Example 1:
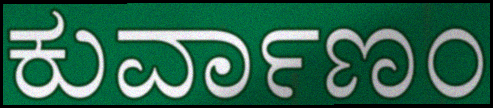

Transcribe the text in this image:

ಕುರ್ವಾಣಂ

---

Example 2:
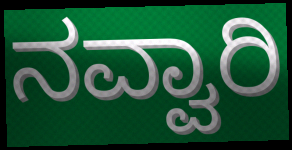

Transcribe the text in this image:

ನವ್ವಾರಿ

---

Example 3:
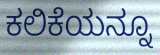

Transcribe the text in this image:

ಕಲಿಕೆಯನ್ನೂ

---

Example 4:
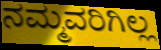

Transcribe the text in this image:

ನಮ್ಮವರಿಗಿಲ್ಲ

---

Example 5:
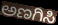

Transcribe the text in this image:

ಅಣಗಿಸಿ